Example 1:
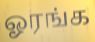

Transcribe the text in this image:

ஓரங்க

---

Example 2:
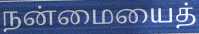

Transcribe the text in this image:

நன்மையைத்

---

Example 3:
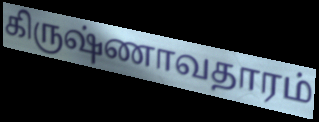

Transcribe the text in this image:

கிருஷ்ணாவதாரம்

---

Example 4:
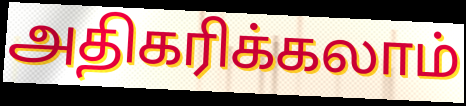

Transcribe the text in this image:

அதிகரிக்கலாம்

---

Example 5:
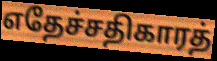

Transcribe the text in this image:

எதேச்சதிகாரத்